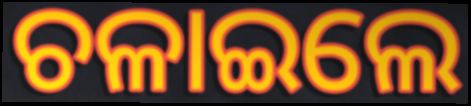
ଚଳାଇଲେ